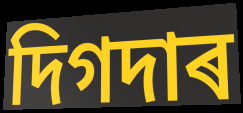
দিগদাৰ